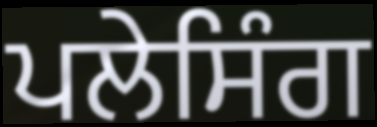
ਪਲੇਸਿੰਗ